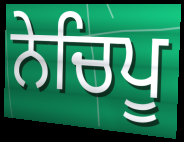
ਨੇਚਿਪੂ